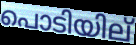
പൊടിയില്